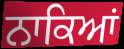
ਨਾਕਿਆਂ